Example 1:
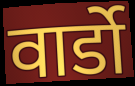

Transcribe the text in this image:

वार्डो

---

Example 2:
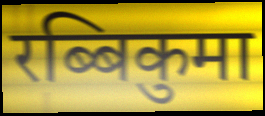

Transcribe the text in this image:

रब्बिकुमा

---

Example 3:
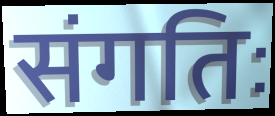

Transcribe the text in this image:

संगतिः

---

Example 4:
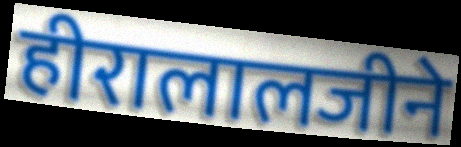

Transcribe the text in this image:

हीरालालजीने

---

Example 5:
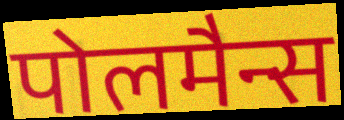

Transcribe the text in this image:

पोलमैन्स